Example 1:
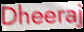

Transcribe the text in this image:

Dheeraj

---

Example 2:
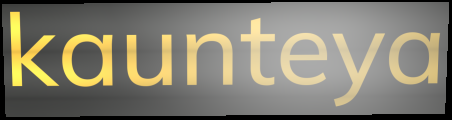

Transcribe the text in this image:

kaunteya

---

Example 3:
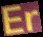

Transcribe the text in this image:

Er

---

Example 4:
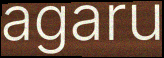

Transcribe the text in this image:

agaru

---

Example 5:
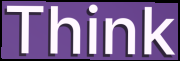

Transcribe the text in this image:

Think